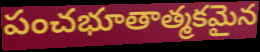
పంచభూతాత్మకమైన